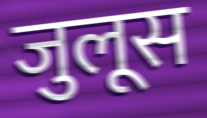
जुलूस